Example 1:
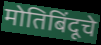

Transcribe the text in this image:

मोतिबिंदूचे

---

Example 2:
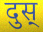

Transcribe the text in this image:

दुस्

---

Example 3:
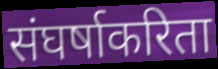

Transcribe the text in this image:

संघर्षाकरिता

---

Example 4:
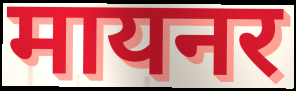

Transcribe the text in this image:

मायनर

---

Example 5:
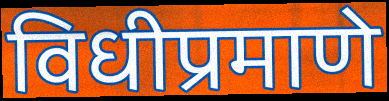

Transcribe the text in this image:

विधीप्रमाणे